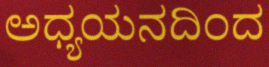
ಅಧ್ಯಯನದಿಂದ